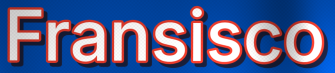
Fransisco